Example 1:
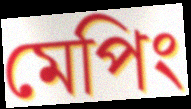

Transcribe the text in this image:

মেপিং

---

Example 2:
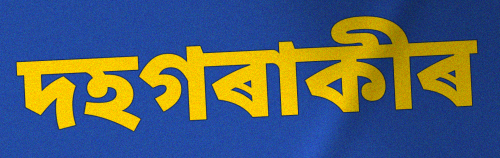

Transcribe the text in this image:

দহগৰাকীৰ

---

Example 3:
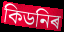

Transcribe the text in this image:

কিডনিৰ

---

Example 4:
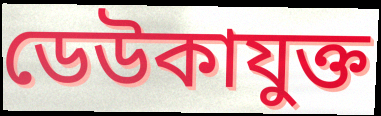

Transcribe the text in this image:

ডেউকাযুক্ত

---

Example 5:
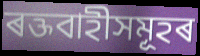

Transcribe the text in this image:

ৰক্তবাহীসমূহৰ